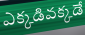
ఎక్కడివక్కడే